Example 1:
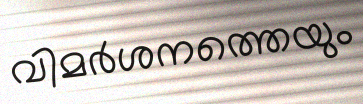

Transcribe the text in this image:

വിമർശനത്തെയും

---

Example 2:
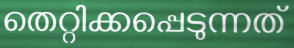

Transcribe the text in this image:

തെറ്റിക്കപ്പെടുന്നത്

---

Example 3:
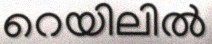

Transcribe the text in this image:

റെയിലിൽ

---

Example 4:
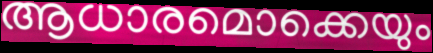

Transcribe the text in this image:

ആധാരമൊക്കെയും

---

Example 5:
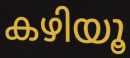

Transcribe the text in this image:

കഴിയൂ